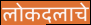
लोकदलाचे